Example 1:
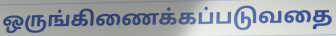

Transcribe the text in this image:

ஒருங்கிணைக்கப்படுவதை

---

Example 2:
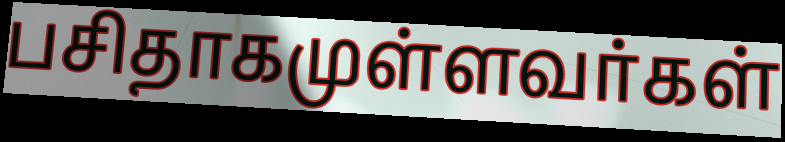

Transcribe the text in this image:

பசிதாகமுள்ளவர்கள்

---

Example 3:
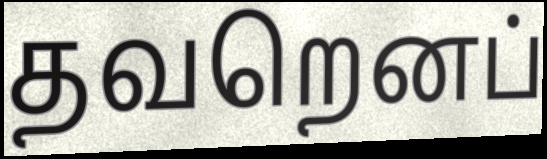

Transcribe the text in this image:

தவறெனப்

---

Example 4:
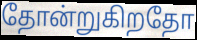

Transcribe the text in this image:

தோன்றுகிறதோ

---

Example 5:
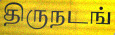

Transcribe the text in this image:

திருநடங்